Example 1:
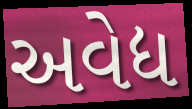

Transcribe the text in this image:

અવેદ્ય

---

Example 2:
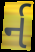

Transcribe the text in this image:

ર્ન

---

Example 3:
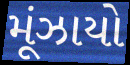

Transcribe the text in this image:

મૂંઝાયો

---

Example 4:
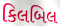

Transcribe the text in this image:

કિલબિલ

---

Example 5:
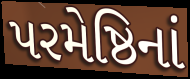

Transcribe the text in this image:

પરમેષ્ઠિનાં